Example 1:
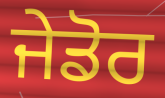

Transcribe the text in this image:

ਜੇਡੋਰ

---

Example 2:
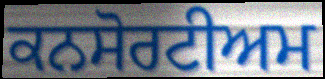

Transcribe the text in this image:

ਕਨਸੋਰਟੀਅਮ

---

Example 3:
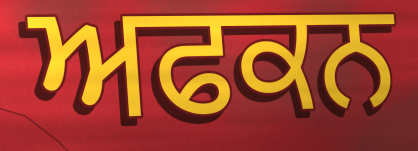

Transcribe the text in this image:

ਅਫਕਨ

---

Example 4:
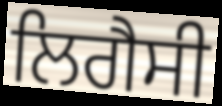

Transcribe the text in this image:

ਲਿਗੈਸੀ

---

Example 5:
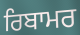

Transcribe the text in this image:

ਰਿਬਾਮਰ